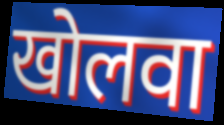
खोलवा